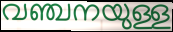
വഞ്ചനയുള്ള